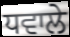
ਧਵਾਲੇ